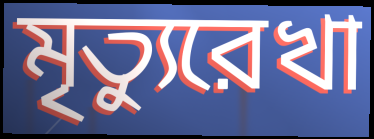
মৃত্যুরেখা